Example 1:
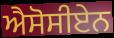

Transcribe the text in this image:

ਐਸੋਸੀਏਨ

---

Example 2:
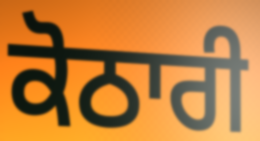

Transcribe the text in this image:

ਕੋਠਾਰੀ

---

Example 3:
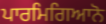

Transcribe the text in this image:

ਪਾਰਮਿਗਿਆਨੋ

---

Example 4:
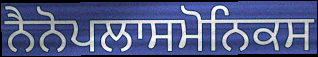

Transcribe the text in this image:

ਨੈਨੋਪਲਾਸਮੋਨਿਕਸ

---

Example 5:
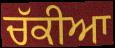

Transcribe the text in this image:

ਚੱਕੀਆ